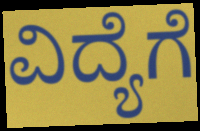
ವಿದ್ಯೆಗೆ